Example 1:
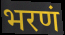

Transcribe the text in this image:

भरणं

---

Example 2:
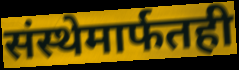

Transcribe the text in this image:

संस्थेमार्फतही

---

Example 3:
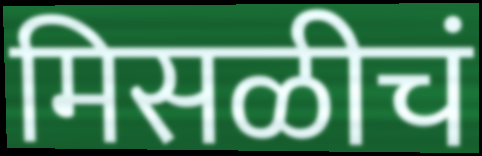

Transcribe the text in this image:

मिसळीचं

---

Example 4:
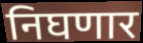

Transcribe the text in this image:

निघणार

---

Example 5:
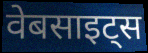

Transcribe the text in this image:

वेबसाइट्स